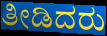
ತೀಡಿದರು